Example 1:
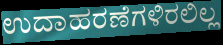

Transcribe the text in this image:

ಉದಾಹರಣೆಗಳಿರಲಿಲ್ಲ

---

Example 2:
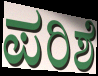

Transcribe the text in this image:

ಪರಿಶೆ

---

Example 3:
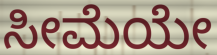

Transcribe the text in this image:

ಸೀಮೆಯೇ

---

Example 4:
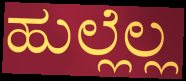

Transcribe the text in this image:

ಹುಲ್ಲೆಲ್ಲ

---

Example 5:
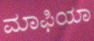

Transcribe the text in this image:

ಮಾಫಿಯಾ